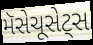
મૅસેચૂસેટ્સ